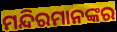
ମନ୍ଦିରମାନଙ୍କର